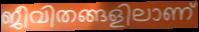
ജീവിതങ്ങളിലാണ്